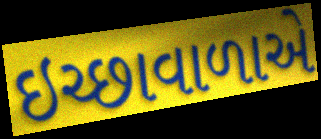
ઇચ્છાવાળાએ